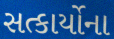
સત્કાર્યોના